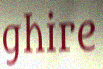
ghire